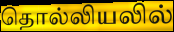
தொல்லியலில்